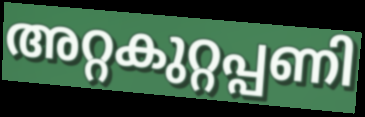
അറ്റകുറ്റപ്പണി